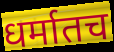
धर्मातच